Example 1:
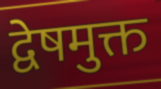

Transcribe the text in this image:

द्वेषमुक्त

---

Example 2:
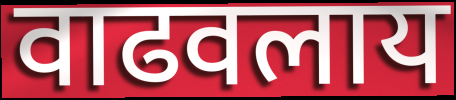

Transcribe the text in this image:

वाढवलाय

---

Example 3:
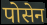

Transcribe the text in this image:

पोसेन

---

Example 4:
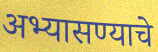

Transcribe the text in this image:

अभ्यासण्याचे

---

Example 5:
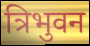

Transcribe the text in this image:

त्रिभुवन